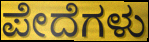
ಪೇದೆಗಳು